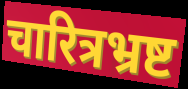
चारित्रभ्रष्ट